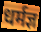
धर्मज्ञ